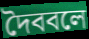
দৈববলে